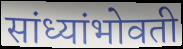
सांध्यांभोवती